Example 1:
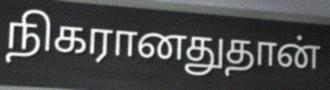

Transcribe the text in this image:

நிகரானதுதான்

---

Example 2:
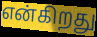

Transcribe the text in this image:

என்கிறது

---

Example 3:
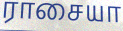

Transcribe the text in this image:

ராசையா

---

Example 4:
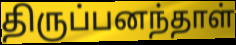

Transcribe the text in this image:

திருப்பனந்தாள்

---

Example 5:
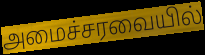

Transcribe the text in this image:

அமைச்சரவையில்